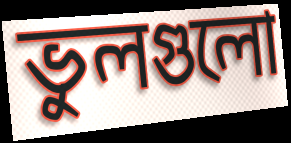
ভুলগুলো